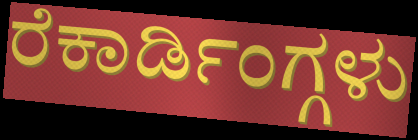
ರೆಕಾರ್ಡಿಂಗ್ಗಳು